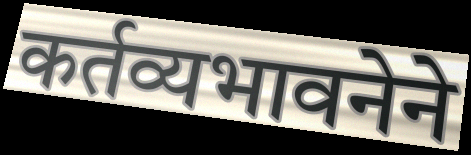
कर्तव्यभावनेने